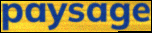
paysage